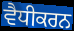
ਵੈਧੀਕਰਨ